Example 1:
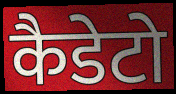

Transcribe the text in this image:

कैडेटो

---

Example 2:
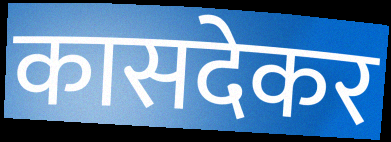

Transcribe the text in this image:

कासदेकर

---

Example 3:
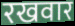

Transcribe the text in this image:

रखवार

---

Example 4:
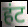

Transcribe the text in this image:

हंट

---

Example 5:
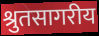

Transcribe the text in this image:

श्रुतसागरीय